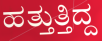
ಹತ್ತುತ್ತಿದ್ದ